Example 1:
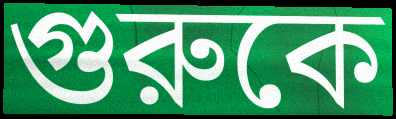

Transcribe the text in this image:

গুরুকে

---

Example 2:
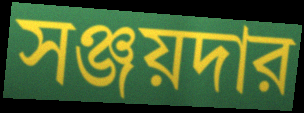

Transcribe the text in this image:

সঞ্জয়দার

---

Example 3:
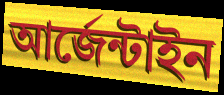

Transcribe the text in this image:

আর্জেন্টাইন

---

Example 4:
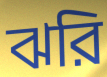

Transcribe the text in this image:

ঝরি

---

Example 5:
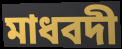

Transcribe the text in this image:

মাধবদী